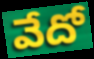
వేదో